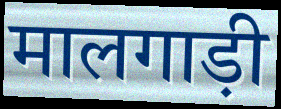
मालगाड़ी